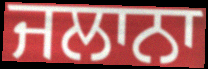
ਜਲਾਨਾ